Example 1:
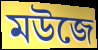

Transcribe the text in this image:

মউজে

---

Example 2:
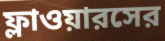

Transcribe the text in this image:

ফ্লাওয়ারসের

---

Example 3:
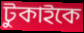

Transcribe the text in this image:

টুকাইকে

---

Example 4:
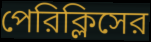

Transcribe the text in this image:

পেরিক্লিসের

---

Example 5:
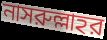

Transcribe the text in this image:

নাসরুল্লাহর